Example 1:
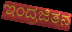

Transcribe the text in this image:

ಇಂದ್ರಜಿತನ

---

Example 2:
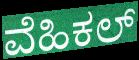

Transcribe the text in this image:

ವೆಹಿಕಲ್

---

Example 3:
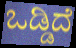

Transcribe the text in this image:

ಒಡ್ಡಿದೆ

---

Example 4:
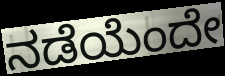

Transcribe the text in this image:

ನಡೆಯೆಂದೇ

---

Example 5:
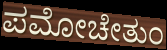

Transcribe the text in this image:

ಪಮೋಚೇತುಂ